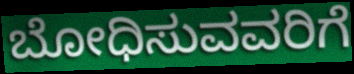
ಬೋಧಿಸುವವರಿಗೆ